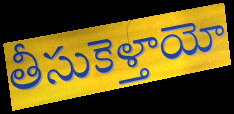
తీసుకెళ్తాయో